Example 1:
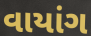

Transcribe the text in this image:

વાયાંગ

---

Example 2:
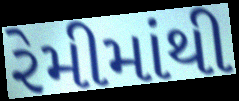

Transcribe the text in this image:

રેમીમાંથી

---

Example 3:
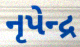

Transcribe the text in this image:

નૃપેન્દ્ર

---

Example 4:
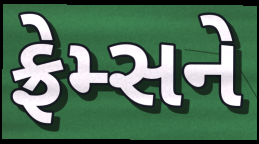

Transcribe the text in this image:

ફ્રેમ્સને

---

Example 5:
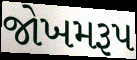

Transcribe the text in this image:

જોખમરૂપ